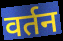
वर्तन